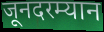
जूनदरम्यान